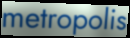
metropolis